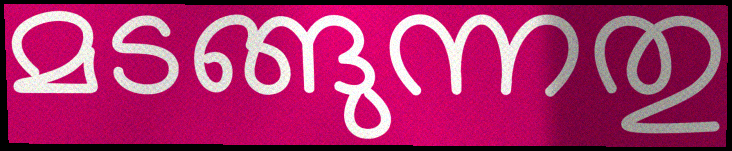
മടങ്ങുന്നതു